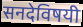
सनदेविषयी